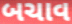
બચાવ